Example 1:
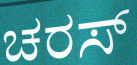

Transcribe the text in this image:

ಚರಸ್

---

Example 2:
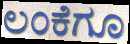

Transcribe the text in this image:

ಲಂಕೆಗೂ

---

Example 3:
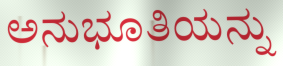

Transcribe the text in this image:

ಅನುಭೂತಿಯನ್ನು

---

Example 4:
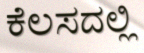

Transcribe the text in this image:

ಕೆಲಸದಲ್ಲಿ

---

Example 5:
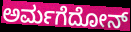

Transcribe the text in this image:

ಅರ್ಮಗೆದೋನ್